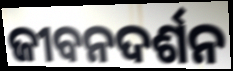
ଜୀବନଦର୍ଶନ